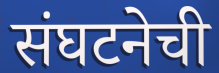
संघटनेची